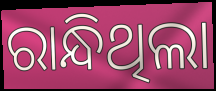
ରାନ୍ଧିଥିଲା